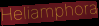
Heliamphora